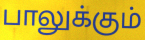
பாலுக்கும்